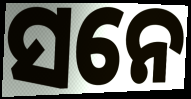
ସନେ